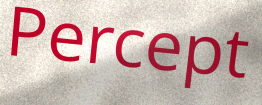
Percept